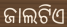
ଜାଲଟିଏ